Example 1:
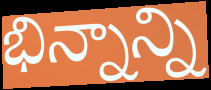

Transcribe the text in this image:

భిన్నాన్ని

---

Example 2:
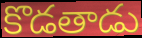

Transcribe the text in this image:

కొడతాడు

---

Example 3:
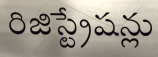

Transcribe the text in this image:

రిజిస్ట్రేషన్లు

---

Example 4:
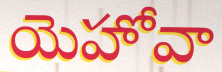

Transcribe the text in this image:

యెహోవా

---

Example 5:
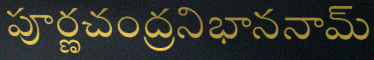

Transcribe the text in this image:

పూర్ణచంద్రనిభాననామ్